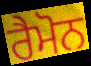
ਰੈਮੋਨ